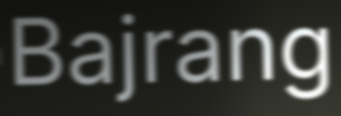
Bajrang